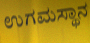
ಉಗಮಸ್ಥಾನ